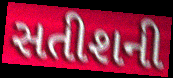
સતીશની